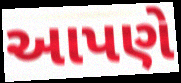
આપણે